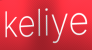
keliye